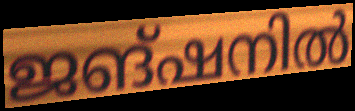
ജങ്ഷനിൽ